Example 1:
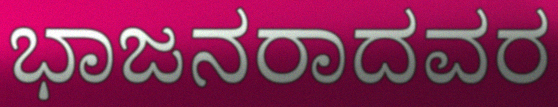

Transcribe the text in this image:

ಭಾಜನರಾದವರ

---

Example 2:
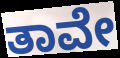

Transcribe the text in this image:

ತಾವೇ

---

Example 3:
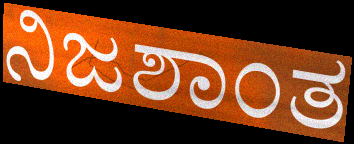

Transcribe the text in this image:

ನಿಜಶಾಂತ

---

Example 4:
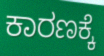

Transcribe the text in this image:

ಕಾರಣಕ್ಕೆ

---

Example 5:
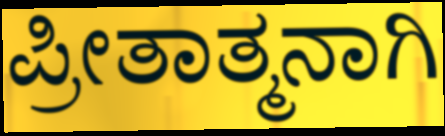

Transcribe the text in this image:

ಪ್ರೀತಾತ್ಮನಾಗಿ